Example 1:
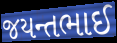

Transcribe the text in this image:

જયન્તભાઈ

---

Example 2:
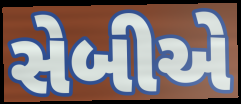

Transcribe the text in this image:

સેબીએ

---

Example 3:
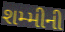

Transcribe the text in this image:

શમ્મીની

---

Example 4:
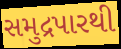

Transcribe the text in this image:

સમુદ્રપારથી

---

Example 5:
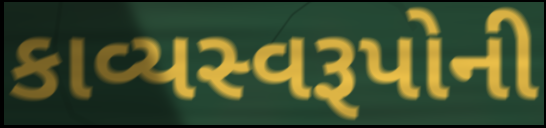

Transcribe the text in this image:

કાવ્યસ્વરૂપોની